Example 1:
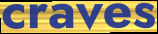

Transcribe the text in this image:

craves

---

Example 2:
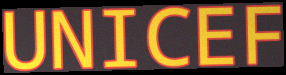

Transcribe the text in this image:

UNICEF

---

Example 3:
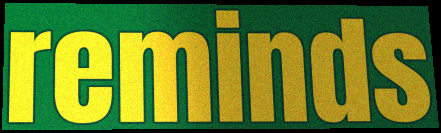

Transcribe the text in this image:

reminds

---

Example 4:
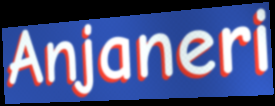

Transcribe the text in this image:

Anjaneri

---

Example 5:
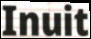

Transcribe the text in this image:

Inuit